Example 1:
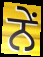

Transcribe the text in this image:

ਨੇਂ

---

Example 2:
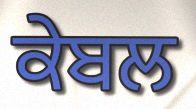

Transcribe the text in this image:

ਕੇਬਲ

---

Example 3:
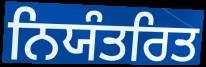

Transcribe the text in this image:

ਨਿਯੰਤਰਿਤ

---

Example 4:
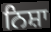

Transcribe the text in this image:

ਨਿਸ਼ਾ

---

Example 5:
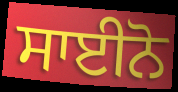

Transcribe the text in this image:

ਸਾਈਨੋ